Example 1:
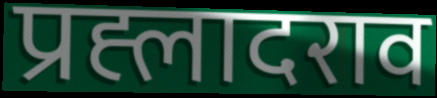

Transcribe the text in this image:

प्रह्लादराव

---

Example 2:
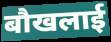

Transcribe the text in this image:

बौखलाई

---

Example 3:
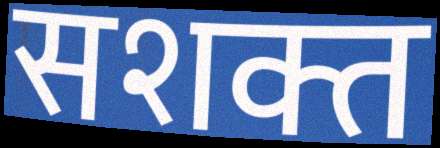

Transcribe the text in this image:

सशक्‍त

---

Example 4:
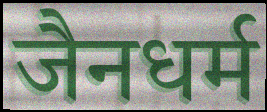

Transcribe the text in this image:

जैनधर्म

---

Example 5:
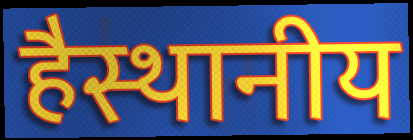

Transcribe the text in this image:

हैस्थानीय